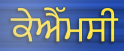
ਕੇਐੱਮਸੀ